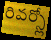
రివర్స్లో